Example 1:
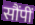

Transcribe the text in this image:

सौंपीं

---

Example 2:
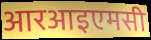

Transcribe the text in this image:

आरआइएमसी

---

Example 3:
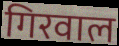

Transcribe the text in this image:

गिरवाल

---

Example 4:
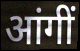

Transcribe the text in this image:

आंगीं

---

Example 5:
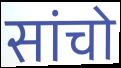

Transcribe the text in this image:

सांचो